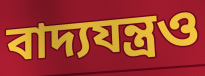
বাদ্যযন্ত্রও